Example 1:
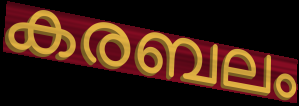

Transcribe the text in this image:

കരബലം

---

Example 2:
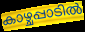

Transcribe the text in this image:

കാഴ്ചപ്പാടിൽ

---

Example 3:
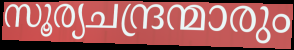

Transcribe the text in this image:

സൂര്യചന്ദ്രന്മാരും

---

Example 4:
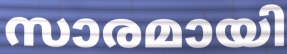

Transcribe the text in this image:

സാരമായി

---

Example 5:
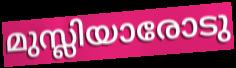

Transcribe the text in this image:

മുസ്ലിയാരോടു